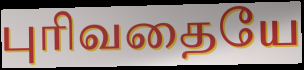
புரிவதையே